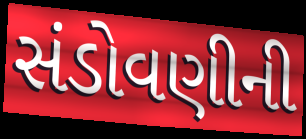
સંડોવણીની